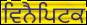
ਵਿਨੈਪਿਟਕ